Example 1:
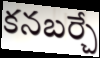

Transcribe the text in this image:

కనబర్చే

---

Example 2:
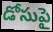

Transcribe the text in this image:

డోసుపై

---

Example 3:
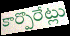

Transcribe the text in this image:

కార్పొరేట్లు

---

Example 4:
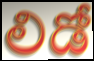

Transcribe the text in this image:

లిడో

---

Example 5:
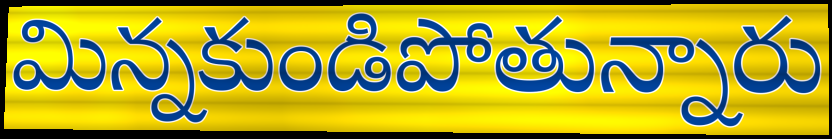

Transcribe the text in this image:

మిన్నకుండిపోతున్నారు